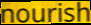
nourish